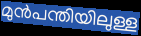
മുൻപന്തിയിലുള്ള